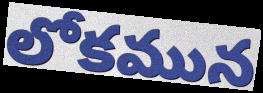
లోకమున